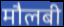
मौलबी